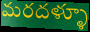
మరదళ్ళూ